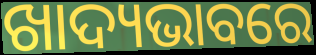
ଖାଦ୍ୟଭାବରେ